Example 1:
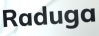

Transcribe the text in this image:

Raduga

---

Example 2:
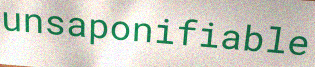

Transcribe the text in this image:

unsaponifiable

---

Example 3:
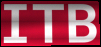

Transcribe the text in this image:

ITB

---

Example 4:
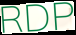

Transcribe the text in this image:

RDP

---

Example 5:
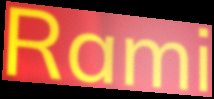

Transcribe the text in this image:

Rami